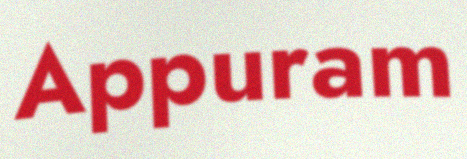
Appuram